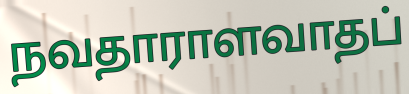
நவதாராளவாதப்